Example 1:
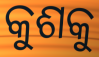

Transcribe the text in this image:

କୁଶକୁ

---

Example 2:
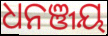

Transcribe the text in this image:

ଧନଞ୍ଜୟ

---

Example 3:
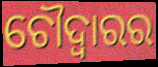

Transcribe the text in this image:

ଚୌଦ୍ୱାରର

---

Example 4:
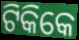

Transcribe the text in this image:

ଟିକିକେ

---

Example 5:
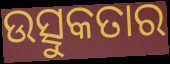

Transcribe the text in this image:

ଉତ୍ସୁକତାର